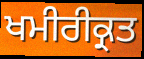
ਖਮੀਰੀਕ੍ਰਤ